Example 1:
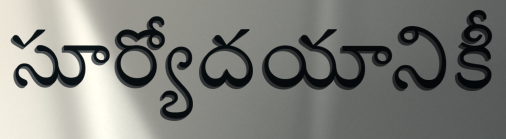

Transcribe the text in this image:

సూర్యోదయానికీ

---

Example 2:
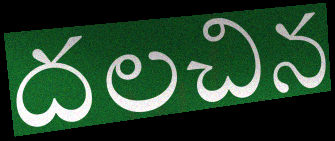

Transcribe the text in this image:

దలచిన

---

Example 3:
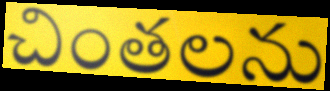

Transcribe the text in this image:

చింతలను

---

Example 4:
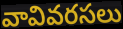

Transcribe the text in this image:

వావివరసలు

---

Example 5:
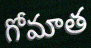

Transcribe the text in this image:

గోమాత